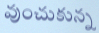
వుంచుకున్న